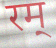
रम्